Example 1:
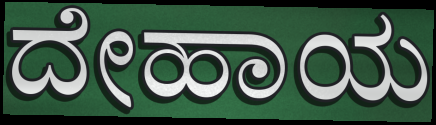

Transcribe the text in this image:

ದೇಹಾಯ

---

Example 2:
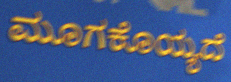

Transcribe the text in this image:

ಮೂಗಕೊಯ್ಯದೆ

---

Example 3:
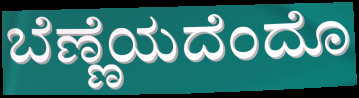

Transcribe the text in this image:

ಬೆಣ್ಣೆಯದೆಂದೊ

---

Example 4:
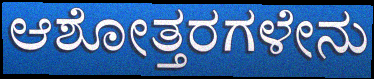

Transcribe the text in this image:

ಆಶೋತ್ತರಗಳೇನು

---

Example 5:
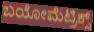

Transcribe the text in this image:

ಬಯೋಮೆಟ್ರಿಕ್ಸ್